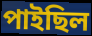
পাইছিল